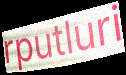
rputluri